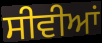
ਸੀਵੀਆਂ